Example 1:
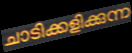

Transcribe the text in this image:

ചാടിക്കളിക്കുന്ന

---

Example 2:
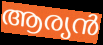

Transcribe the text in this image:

ആര്യൻ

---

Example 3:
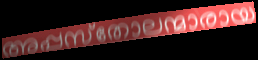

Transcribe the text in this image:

അപ്പസ്‌തോലന്മാരായ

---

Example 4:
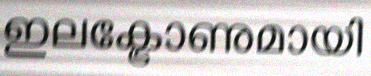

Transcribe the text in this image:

ഇലക്ട്രോണുമായി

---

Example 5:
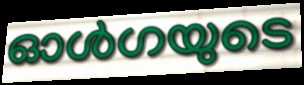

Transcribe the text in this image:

ഓൾഗയുടെ